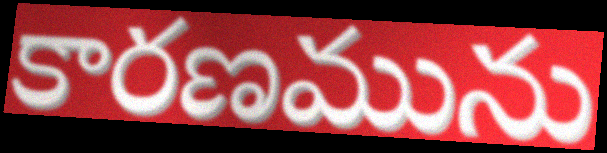
కారణమును